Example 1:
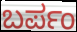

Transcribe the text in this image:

ಬರ್ಪಂ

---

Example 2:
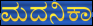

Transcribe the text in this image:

ಮದನಿಕಾ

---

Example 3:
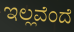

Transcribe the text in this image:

ಇಲ್ಲವೆಂದೆ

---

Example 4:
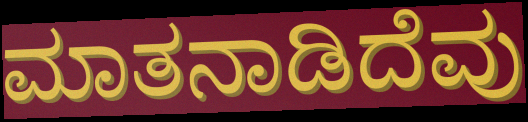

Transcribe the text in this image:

ಮಾತನಾಡಿದೆವು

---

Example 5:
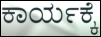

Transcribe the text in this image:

ಕಾರ್ಯಕ್ಕೆ